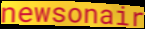
newsonair